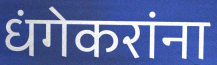
धंगेकरांना